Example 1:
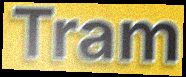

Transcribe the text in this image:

Tram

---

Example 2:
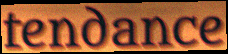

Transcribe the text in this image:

tendance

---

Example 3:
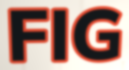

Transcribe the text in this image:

FIG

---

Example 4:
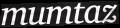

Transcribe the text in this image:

mumtaz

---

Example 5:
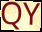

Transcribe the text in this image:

QY